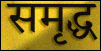
समृद्ध